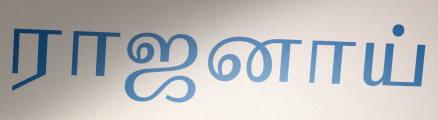
ராஜனாய்